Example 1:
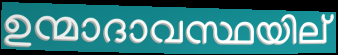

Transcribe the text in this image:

ഉന്മാദാവസ്ഥയില്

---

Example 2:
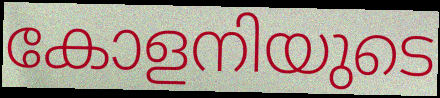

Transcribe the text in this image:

കോളനിയുടെ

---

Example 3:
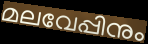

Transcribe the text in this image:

മലവേപ്പിനും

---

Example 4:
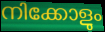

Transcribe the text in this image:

നിക്കോളും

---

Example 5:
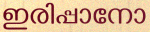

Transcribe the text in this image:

ഇരിപ്പാനോ